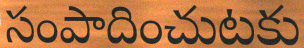
సంపాదించుటకు